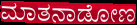
ಮಾತನಾಡೋಣ